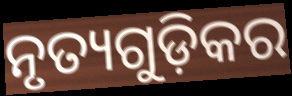
ନୃତ୍ୟଗୁଡ଼ିକର